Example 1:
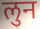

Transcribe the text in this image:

लुन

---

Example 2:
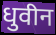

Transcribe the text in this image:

धुवीन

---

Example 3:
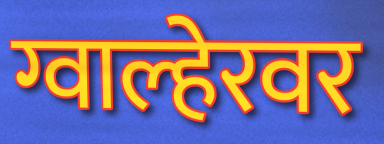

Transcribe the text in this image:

ग्वाल्हेरवर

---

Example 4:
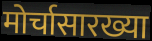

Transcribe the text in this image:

मोर्चासारख्या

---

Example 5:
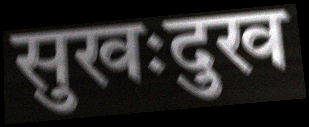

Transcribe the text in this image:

सुखःदुख